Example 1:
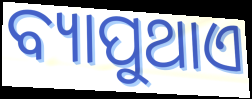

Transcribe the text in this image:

ବ୍ୟାପୁଥାଏ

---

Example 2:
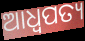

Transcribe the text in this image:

ଆଧ୍ଵପତ୍ୟ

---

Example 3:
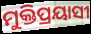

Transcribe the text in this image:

ମୁକ୍ତିପ୍ରୟାସୀ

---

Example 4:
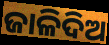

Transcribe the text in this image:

ଜାଳିଦିଅ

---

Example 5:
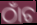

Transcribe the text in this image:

ଠାଁଚ